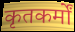
कृतकर्मों